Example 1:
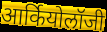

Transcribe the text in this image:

आर्कियोलॉजी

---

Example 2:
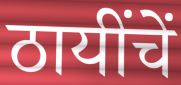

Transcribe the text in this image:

ठायींचें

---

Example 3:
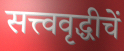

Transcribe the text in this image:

सत्त्ववृद्धीचें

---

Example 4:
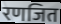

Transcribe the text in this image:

रणजित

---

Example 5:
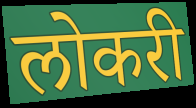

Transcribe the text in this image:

लोकरी